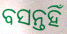
ବସନ୍ତହିଁ